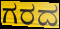
ಗರದ